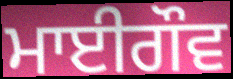
ਮਾਈਗੌਵ